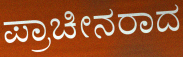
ಪ್ರಾಚೀನರಾದ